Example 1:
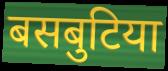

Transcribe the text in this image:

बसबुटिया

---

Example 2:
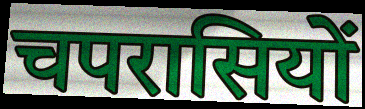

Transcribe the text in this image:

चपरासियों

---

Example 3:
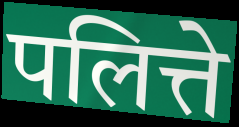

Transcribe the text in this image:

पलित्ते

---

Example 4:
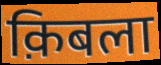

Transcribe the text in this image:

क़िबला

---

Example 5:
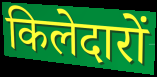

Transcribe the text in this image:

किलेदारों